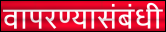
वापरण्यासंबंधी